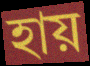
হায়